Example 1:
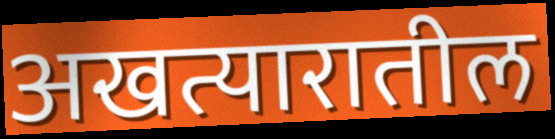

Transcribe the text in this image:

अखत्यारातील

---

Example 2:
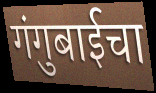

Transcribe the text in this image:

गंगुबाईचा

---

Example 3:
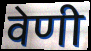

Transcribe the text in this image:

वेणी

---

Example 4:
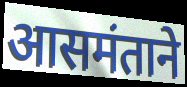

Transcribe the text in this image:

आसमंताने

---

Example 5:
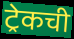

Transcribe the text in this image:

ट्रेकची